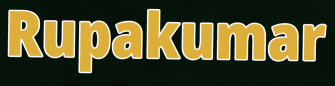
Rupakumar